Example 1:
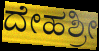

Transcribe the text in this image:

ದೇಹಶ್ರೀ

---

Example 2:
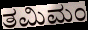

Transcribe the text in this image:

ತಮಿಮಂ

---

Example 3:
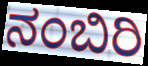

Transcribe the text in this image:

ನಂಬಿರಿ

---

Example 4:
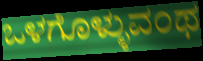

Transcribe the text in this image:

ಒಳಗೊಳ್ಳುವಂಥ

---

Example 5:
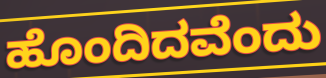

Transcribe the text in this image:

ಹೊಂದಿದವೆಂದು